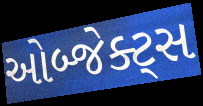
ઓબ્જેક્ટ્સ